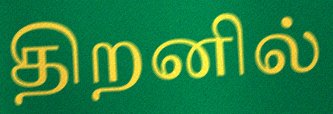
திறனில்